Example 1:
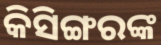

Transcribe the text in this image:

କିସିଙ୍ଗରଙ୍କ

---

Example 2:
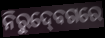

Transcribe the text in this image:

ନିରୁଦ୍‍ବେଗରେ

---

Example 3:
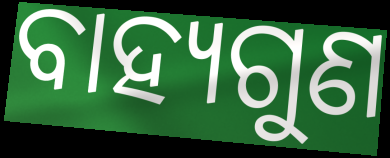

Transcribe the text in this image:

ବାହ୍ୟଗୁଣ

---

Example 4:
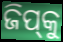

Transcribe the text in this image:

ଜିପ୍‌କୁ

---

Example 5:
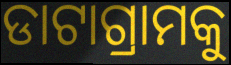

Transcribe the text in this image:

ଡାଟାଗ୍ରାମକୁ